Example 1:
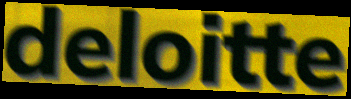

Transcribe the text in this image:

deloitte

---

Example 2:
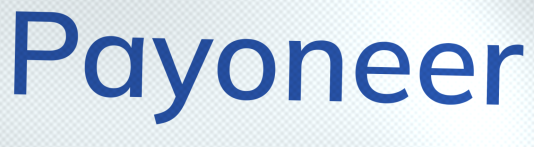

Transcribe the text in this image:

Payoneer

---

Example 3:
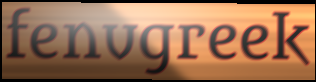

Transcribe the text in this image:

fenugreek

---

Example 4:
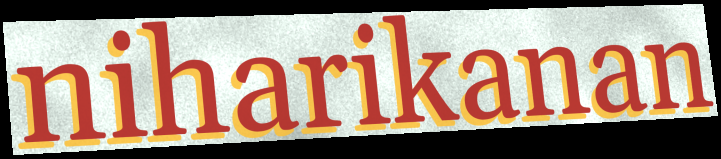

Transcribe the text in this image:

niharikanan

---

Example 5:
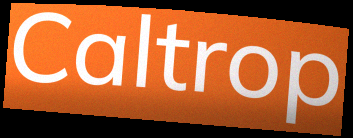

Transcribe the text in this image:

Caltrop